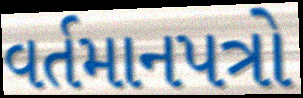
વર્તમાનપત્રો